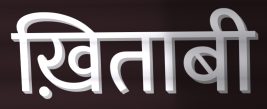
ख़िताबी